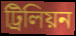
ট্ৰিলিয়ন